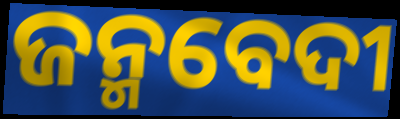
ଜନ୍ମବେଦୀ